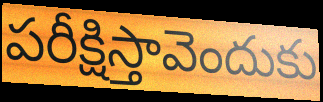
పరీక్షిస్తావెందుకు